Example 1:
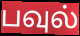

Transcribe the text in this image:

பவுல்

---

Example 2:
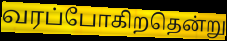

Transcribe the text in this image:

வரப்போகிறதென்று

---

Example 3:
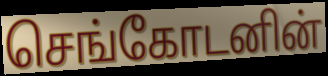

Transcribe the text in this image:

செங்கோடனின்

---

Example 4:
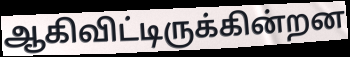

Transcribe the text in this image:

ஆகிவிட்டிருக்கின்றன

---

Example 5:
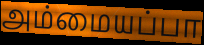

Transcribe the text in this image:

அம்மையப்பா